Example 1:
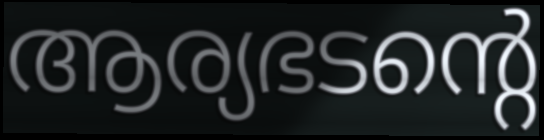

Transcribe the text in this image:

ആര്യഭടന്റെ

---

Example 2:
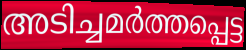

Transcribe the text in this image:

അടിച്ചമർത്തപ്പെട്ട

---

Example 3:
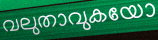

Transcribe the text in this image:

വലുതാവുകയോ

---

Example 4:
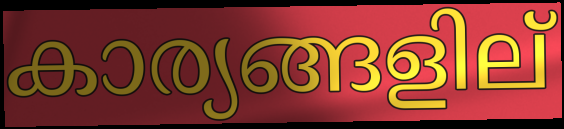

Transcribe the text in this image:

കാര്യങ്ങളില്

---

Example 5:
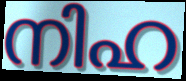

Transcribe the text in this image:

നിഹ